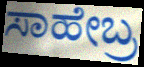
ಸಾಹೇಬ್ರ